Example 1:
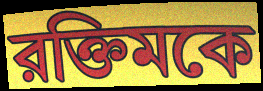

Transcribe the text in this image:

রক্তিমকে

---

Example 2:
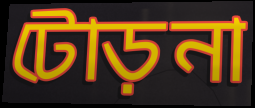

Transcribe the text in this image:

টোড়না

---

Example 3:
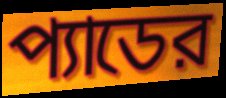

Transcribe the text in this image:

প্যাডের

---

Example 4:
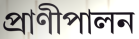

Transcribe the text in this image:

প্রাণীপালন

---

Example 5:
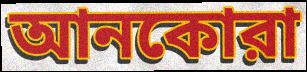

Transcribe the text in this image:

আনকোরা